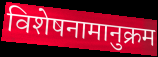
विशेषनामानुक्रम